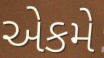
એકમે